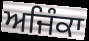
ਅਜਿੰਕਾ